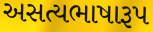
અસત્યભાષારૂપ